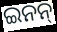
ଇନନ୍